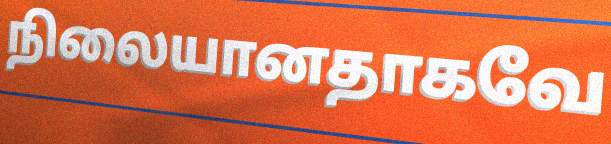
நிலையானதாகவே